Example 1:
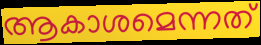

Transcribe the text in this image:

ആകാശമെന്നത്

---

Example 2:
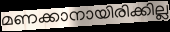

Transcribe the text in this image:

മണക്കാനായിരിക്കില്ല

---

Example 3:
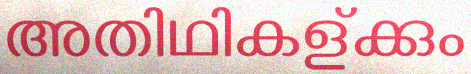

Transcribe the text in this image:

അതിഥികള്ക്കും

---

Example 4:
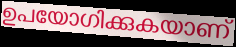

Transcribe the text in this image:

ഉപയോഗിക്കുകയാണ്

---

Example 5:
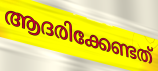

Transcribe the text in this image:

ആദരിക്കേണ്ടത്